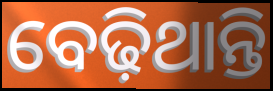
ବେଢ଼ିଥାନ୍ତି